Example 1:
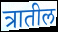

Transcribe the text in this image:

त्रातील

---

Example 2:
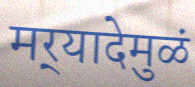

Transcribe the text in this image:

मर्यादेमुळं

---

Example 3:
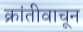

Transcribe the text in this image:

क्रांतीवाचून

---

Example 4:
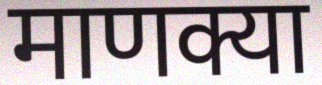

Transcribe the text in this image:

माणक्या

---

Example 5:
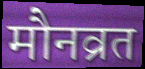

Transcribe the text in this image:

मौनव्रत